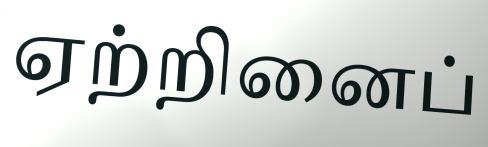
ஏற்றினைப்